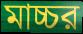
মাচ্চর